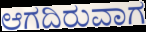
ಆಗದಿರುವಾಗ